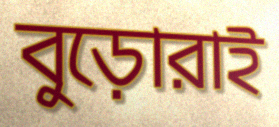
বুড়োরাই